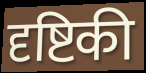
दृष्टिकी